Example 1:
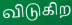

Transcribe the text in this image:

விடுகிற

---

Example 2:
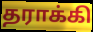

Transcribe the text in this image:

தராக்கி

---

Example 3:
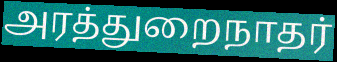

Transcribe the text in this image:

அரத்துறைநாதர்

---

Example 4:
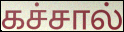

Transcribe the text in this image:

கச்சால்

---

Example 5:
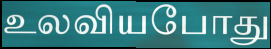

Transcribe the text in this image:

உலவியபோது